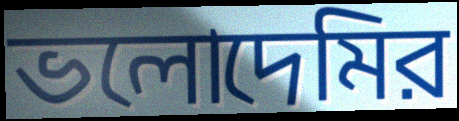
ভলোদেমির